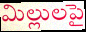
మిల్లులపై